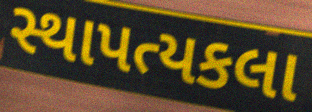
સ્થાપત્યકલા